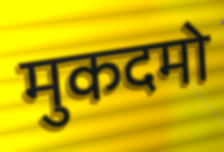
मुकदमो